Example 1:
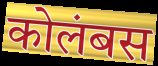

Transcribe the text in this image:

कोलंबस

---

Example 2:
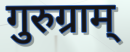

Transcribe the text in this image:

गुरुग्राम्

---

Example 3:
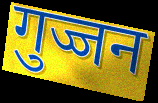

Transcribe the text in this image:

गुज्जन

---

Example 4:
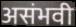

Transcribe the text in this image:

असंभवी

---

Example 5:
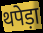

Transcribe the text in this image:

थपेड़ा